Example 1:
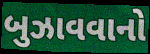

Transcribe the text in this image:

બુઝાવવાનો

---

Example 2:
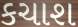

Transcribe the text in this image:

કચાશ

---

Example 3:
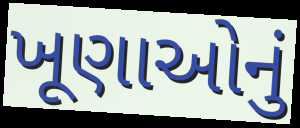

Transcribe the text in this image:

ખૂણાઓનું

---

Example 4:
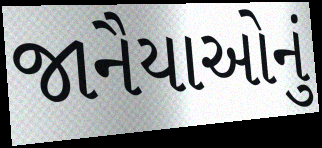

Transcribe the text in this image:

જાનૈયાઓનું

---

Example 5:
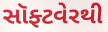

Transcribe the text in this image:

સૉફ્ટવેરથી